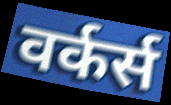
वर्कर्स